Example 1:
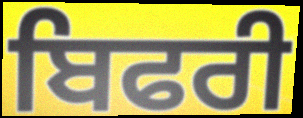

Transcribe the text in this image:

ਬਿਫਰੀ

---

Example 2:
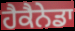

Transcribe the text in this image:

ਹੈਕੈਨੇਡਾ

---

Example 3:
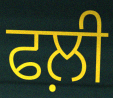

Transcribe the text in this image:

ਫਲ਼ੀ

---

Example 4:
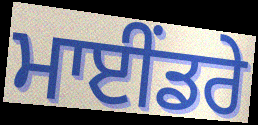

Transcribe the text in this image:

ਮਾਈਂਡਰੇ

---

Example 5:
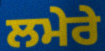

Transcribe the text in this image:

ਲਮੇਰੇ